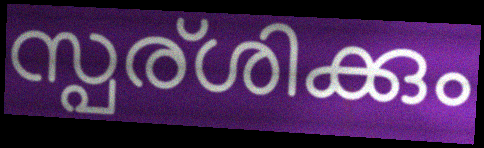
സ്പര്ശിക്കും